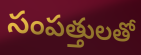
సంపత్తులతో